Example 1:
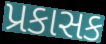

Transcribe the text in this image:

પ્રકાસક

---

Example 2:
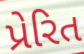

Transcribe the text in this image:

પ્રેરિત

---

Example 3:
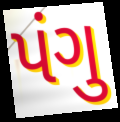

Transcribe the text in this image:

પંગુ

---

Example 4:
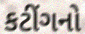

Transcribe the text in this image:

કટીંગનો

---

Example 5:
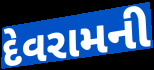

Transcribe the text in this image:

દેવરામની